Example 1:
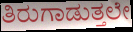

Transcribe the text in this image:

ತಿರುಗಾಡುತ್ತಲೇ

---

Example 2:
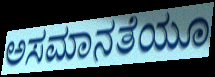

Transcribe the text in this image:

ಅಸಮಾನತೆಯೂ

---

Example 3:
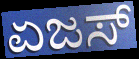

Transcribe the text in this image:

ಏಜಸ್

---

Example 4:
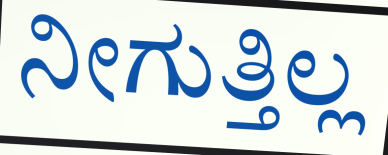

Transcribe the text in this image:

ನೀಗುತ್ತಿಲ್ಲ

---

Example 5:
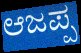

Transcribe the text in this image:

ಆಜಪ್ಪ